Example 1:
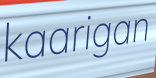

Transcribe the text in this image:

kaarigan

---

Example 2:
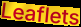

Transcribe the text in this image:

Leaflets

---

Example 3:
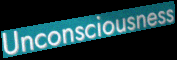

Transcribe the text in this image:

Unconsciousness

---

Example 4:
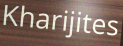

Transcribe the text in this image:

Kharijites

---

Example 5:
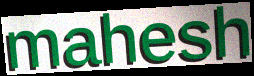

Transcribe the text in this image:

mahesh